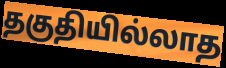
தகுதியில்லாத